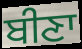
ਬੀਣਾ